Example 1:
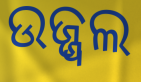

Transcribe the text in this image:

ଉଜ୍ଜ୍ୱଲ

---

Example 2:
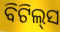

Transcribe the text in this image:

ବିଟିଲ୍‌ସ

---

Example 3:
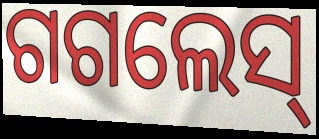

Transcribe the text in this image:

ଗଗଲେସ୍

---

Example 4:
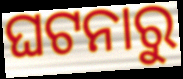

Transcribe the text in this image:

ଘଟନାରୁ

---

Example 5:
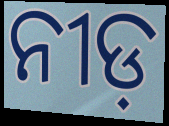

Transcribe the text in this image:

ନୀଡ଼